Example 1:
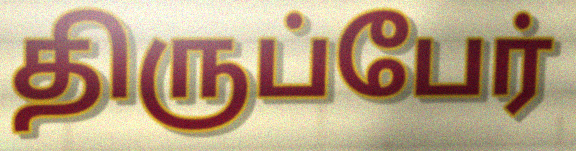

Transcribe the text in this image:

திருப்பேர்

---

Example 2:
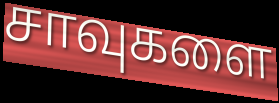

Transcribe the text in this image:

சாவுகளை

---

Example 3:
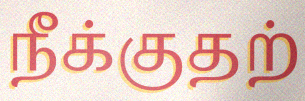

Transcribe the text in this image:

நீக்குதற்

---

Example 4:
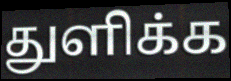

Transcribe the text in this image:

துளிக்க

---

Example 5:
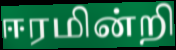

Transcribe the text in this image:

ஈரமின்றி